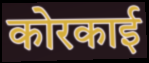
कोरकाई